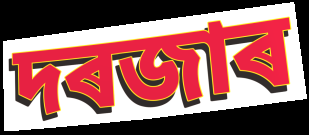
দৰজাৰ